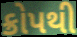
ક્રોપથી